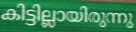
കിട്ടില്ലായിരുന്നു